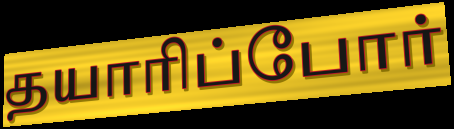
தயாரிப்போர்